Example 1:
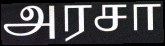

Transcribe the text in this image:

அரசா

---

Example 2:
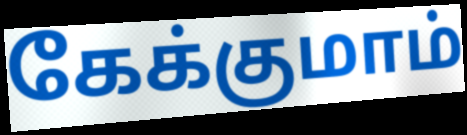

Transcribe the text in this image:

கேக்குமாம்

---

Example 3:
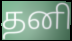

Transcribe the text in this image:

தனி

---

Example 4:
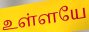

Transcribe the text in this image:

உள்ளயே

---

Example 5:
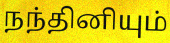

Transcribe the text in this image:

நந்தினியும்